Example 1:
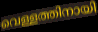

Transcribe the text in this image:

വെള്ളത്തിനായി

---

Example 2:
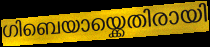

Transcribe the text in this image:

ഗിബെയായ്ക്കെതിരായി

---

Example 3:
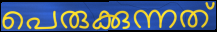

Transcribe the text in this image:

പെരുക്കുന്നത്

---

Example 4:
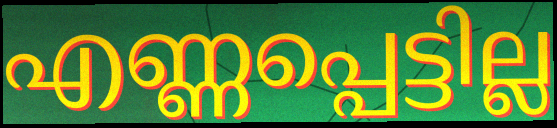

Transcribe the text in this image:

എണ്ണപ്പെട്ടില്ല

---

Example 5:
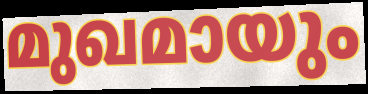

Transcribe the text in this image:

മുഖമായും